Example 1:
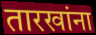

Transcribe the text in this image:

तारखांना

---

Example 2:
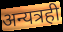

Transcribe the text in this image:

अन्यत्रही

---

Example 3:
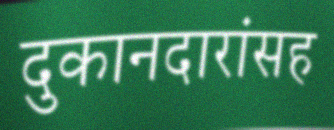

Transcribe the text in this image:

दुकानदारांसह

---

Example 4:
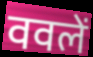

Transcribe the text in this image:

ववलें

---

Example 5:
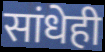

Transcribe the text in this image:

सांधेही